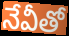
నేవీతో